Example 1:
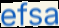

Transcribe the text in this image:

efsa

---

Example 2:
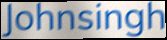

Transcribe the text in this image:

Johnsingh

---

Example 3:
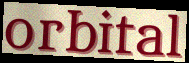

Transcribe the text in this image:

orbital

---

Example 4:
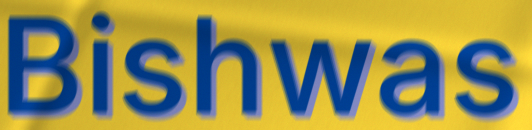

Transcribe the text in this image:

Bishwas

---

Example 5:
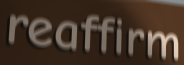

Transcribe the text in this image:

reaffirm